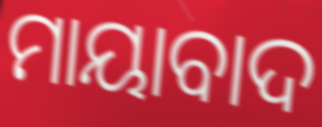
ମାୟାବାଦ